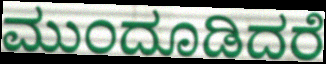
ಮುಂದೂಡಿದರೆ